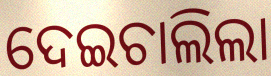
ଦେଇଚାଲିଲା